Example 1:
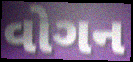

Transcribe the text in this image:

વોગન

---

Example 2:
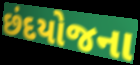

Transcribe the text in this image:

છંદયોજના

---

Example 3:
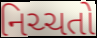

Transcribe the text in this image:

નિચ્ચતો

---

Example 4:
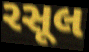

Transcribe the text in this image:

રસૂલ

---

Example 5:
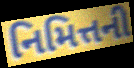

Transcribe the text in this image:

નિમિત્તની